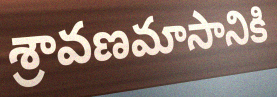
శ్రావణమాసానికి